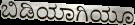
ಬಿಡಿಯಾಗಿಯೂ